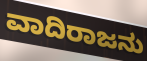
ವಾದಿರಾಜನು